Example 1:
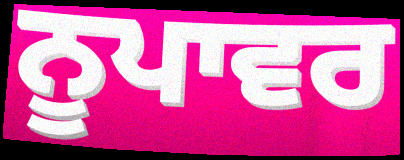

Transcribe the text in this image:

ਨੂਪਾਵਰ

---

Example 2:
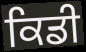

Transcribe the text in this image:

ਕਿਡੀ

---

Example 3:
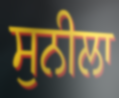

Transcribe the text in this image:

ਸੁਨੀਲਾ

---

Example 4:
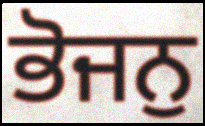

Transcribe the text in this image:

ਭੋਜਨੁ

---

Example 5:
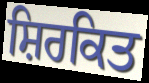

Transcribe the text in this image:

ਸ਼ਿਰਕਿਤ